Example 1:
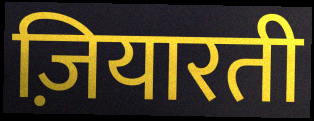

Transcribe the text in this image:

ज़ियारती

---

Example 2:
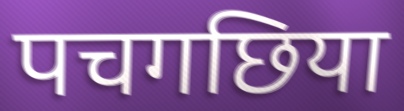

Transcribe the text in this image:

पचगछिया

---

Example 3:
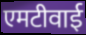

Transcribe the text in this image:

एमटीवाई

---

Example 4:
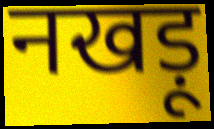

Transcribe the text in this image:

नखड़ू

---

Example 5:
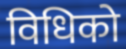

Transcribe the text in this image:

विधिको